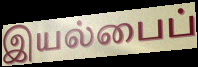
இயல்பைப்